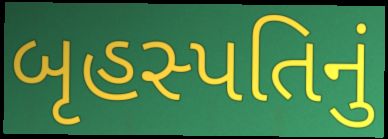
બૃહસ્પતિનું